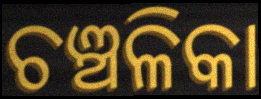
ଚଞ୍ଚଳିକା